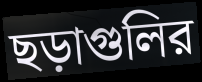
ছড়াগুলির